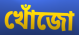
খোঁজো